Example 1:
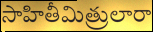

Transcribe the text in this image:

సాహితీమిత్రులారా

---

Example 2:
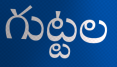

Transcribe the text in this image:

గుట్టల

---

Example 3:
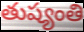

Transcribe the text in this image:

తుష్యంతి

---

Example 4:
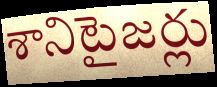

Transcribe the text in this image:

శానిటైజర్లు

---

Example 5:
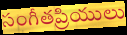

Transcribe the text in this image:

సంగీతప్రియులు